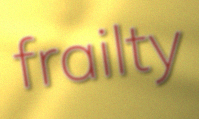
frailty